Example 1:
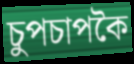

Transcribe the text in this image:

চুপচাপকৈ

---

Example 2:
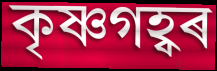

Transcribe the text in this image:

কৃষ্ণগহ্বৰ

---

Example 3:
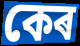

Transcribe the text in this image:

কেৰ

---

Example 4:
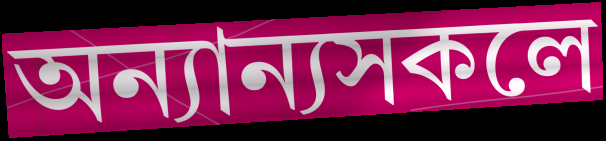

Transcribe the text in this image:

অন্যান্যসকলে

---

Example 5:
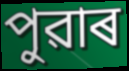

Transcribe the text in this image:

পুৱাৰ